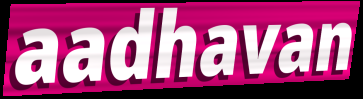
aadhavan